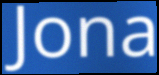
Jona